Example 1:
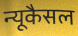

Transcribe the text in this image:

न्यूकैसल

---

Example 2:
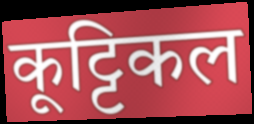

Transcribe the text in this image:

कूट्टिकल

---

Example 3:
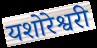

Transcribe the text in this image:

यशोरेश्वरी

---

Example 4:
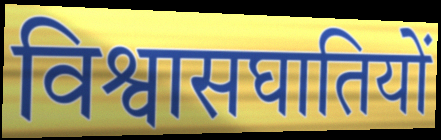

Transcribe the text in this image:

विश्वासघातियों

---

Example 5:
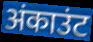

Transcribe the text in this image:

अंकाउंट